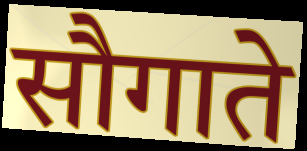
सौगाते